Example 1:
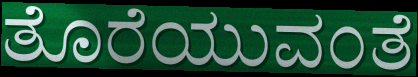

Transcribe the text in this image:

ತೊರೆಯುವಂತೆ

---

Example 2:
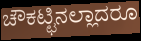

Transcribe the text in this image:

ಚೌಕಟ್ಟಿನಲ್ಲಾದರೂ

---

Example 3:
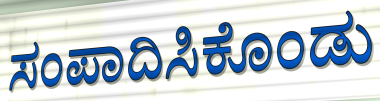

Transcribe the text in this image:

ಸಂಪಾದಿಸಿಕೊಂಡು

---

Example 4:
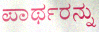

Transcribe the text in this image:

ಪಾರ್ಥರನ್ನು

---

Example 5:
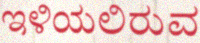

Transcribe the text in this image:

ಇಳಿಯಲಿರುವ